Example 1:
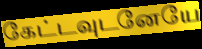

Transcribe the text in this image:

கேட்டவுடனேயே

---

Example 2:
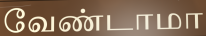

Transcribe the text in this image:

வேண்டாமா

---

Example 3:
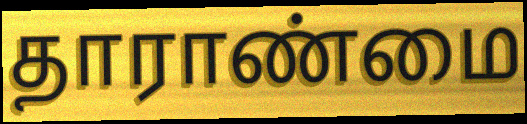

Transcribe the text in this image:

தாராண்மை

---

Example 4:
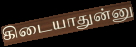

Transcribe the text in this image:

கிடையாதுன்னு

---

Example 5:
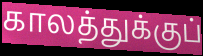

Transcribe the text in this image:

காலத்துக்குப்